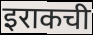
इराकची